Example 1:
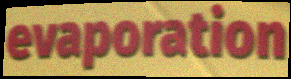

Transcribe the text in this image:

evaporation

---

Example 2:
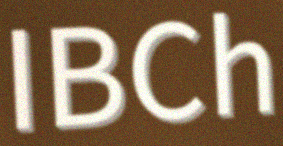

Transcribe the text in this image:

IBCh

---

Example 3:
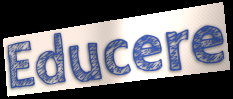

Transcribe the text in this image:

Educere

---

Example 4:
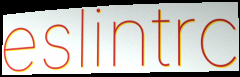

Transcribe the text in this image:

eslintrc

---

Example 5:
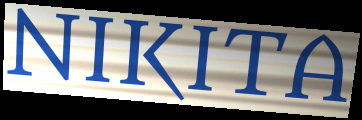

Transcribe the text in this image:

NIKITA